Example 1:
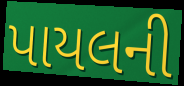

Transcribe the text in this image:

પાયલની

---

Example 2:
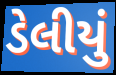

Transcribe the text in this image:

ડેલીયું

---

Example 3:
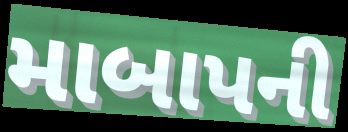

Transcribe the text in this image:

માબાપની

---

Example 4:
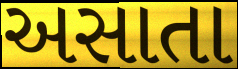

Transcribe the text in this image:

અસાતા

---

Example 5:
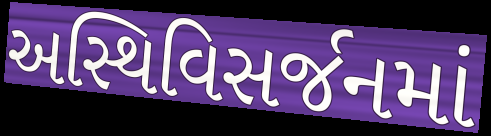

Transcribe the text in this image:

અસ્થિવિસર્જનમાં